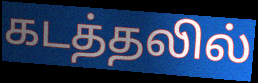
கடத்தலில்